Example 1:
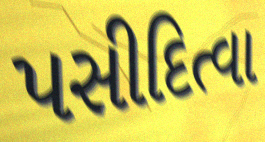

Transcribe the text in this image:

પસીદિત્વા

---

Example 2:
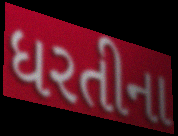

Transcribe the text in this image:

ધરતીના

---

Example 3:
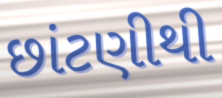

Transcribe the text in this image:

છાંટણીથી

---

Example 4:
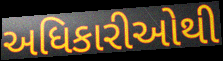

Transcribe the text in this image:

અધિકારીઓથી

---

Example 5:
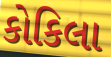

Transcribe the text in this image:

કોકિલા